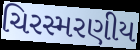
ચિરસ્મરણીય